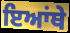
ਇਆਂਥੇ